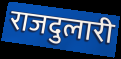
राजदुलारी